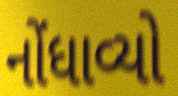
નોંધાવ્યો